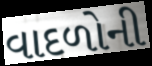
વાદળોની